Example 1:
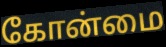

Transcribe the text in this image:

கோன்மை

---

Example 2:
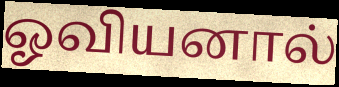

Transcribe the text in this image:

ஓவியனால்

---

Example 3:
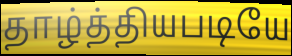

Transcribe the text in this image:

தாழ்த்தியபடியே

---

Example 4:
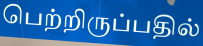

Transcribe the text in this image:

பெற்றிருப்பதில்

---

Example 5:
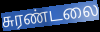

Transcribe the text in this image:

சுரண்டலை